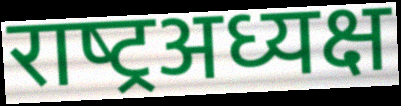
राष्ट्रअध्यक्ष